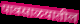
पावसाळयातील